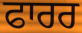
ਫਾਰਰ